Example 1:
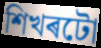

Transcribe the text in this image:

শিখৰটো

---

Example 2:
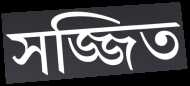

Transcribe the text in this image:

সজ্জিত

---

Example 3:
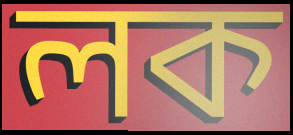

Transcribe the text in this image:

লক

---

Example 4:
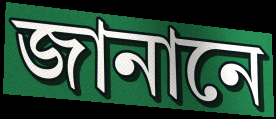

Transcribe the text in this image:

জানানে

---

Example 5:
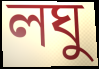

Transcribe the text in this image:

লঘু